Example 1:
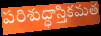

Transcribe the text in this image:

పరిశుద్ధాస్తికమత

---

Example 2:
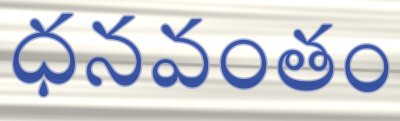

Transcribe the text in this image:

ధనవంతం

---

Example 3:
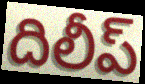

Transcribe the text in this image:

దిలీప్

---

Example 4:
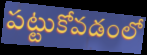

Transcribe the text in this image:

పట్టుకోవడంలో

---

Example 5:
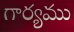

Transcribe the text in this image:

గార్యము